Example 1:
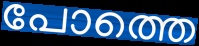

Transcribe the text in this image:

പോത്തെ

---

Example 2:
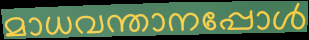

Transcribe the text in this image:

മാധവന്താനപ്പോൾ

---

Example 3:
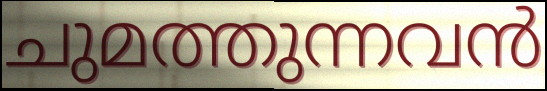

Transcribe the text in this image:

ചുമത്തുന്നവൻ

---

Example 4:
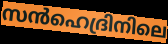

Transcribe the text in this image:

സൻഹെദ്രിനിലെ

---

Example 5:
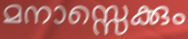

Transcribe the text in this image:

മനാസ്സെക്കും